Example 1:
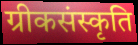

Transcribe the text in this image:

ग्रीकसंस्कृति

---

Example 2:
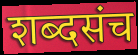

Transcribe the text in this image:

शब्दसंच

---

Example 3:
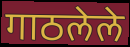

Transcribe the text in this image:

गाठलेले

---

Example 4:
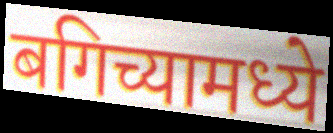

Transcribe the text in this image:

बगिच्यामध्ये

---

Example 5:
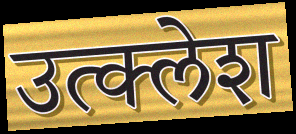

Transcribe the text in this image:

उत्क्लेश